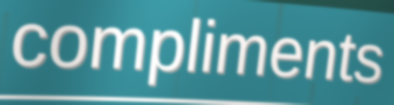
compliments